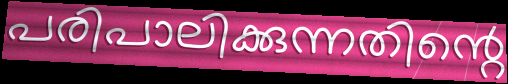
പരിപാലിക്കുന്നതിന്റെ